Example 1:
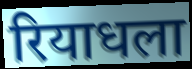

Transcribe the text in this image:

रियाधला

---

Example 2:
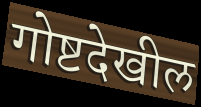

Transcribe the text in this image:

गोष्टदेखील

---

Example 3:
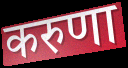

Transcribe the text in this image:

करुणा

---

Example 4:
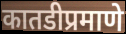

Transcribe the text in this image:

कातडीप्रमाणे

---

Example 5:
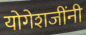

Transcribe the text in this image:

योगेशजींनी